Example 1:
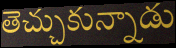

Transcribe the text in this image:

తెచ్చుకున్నాడు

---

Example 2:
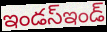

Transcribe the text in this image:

ఇండస్ఇండ్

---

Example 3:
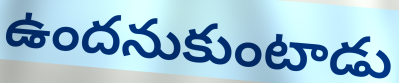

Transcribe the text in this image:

ఉందనుకుంటాడు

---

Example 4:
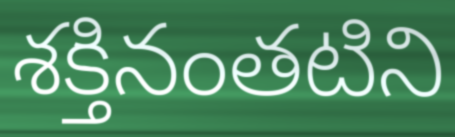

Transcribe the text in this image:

శక్తినంతటిని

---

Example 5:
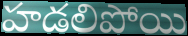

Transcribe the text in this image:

హడలిపోయి